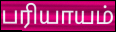
பரியாயம்